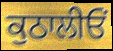
ਕੁਠਾਲੀਓਂ